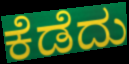
ಕೆಡೆದು